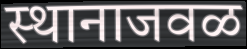
स्थानाजवळ